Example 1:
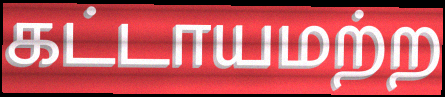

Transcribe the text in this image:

கட்டாயமற்ற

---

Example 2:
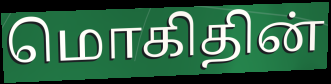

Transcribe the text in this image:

மொகிதின்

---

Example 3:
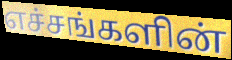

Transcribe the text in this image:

எச்சங்களின்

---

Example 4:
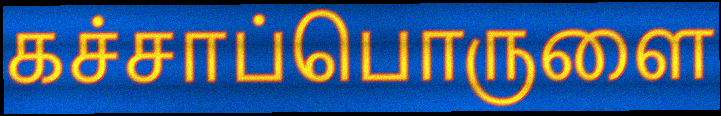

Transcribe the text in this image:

கச்சாப்பொருளை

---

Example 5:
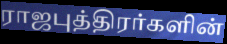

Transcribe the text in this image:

ராஜபுத்திரர்களின்